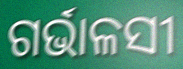
ଗର୍ଭାଳସୀ